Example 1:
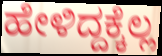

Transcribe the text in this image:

ಹೇಳಿದ್ದಕ್ಕೆಲ್ಲ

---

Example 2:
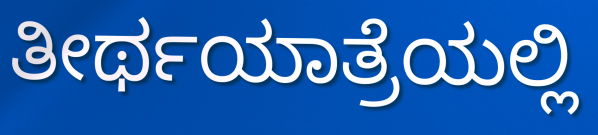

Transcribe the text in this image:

ತೀರ್ಥಯಾತ್ರೆಯಲ್ಲಿ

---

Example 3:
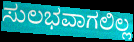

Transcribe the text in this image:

ಸುಲಭವಾಗಲಿಲ್ಲ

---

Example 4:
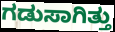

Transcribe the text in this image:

ಗಡುಸಾಗಿತ್ತು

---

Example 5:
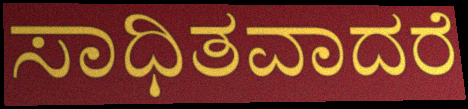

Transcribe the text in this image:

ಸಾಧಿತವಾದರೆ